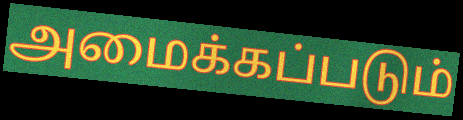
அமைக்கப்படும்